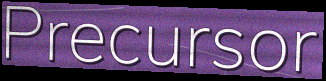
Precursor